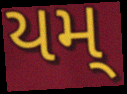
યમ્